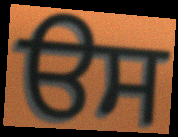
ੳਸ